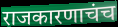
राजकारणाचंच